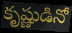
కృష్ణుడినో